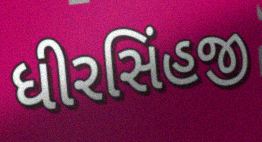
ધીરસિંહજી